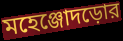
মহেঞ্জোদড়োর